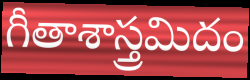
గీతాశాస్త్రమిదం